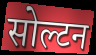
सोल्टन